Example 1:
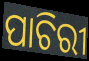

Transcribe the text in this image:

ପାଚିରୀ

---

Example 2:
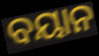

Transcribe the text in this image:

ବୟାନ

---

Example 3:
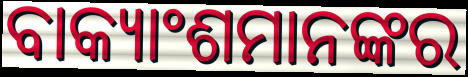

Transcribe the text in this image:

ବାକ୍ୟାଂଶମାନଙ୍କର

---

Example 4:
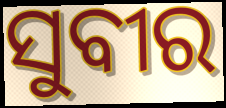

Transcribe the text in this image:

ସୁବୀର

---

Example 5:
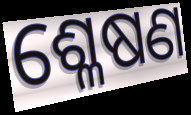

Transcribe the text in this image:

ଶ୍ଳେଷଣ